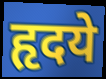
हृदये